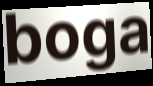
boga